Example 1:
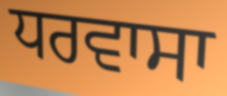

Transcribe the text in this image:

ਧਰਵਾਸਾ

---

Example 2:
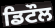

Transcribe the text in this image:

ਡਿਟੌਲ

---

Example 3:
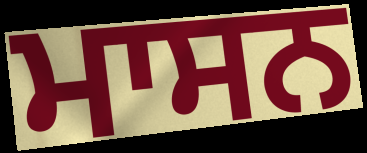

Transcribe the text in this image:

ਮਾਸਨ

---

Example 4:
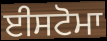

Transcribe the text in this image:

ਈਸਟੋਮਾ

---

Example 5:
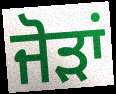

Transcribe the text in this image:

ਜੋਡ਼ਾਂ